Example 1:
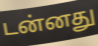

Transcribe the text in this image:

டன்னது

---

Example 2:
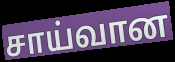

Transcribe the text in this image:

சாய்வான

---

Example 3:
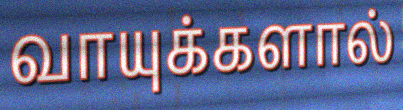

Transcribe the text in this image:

வாயுக்களால்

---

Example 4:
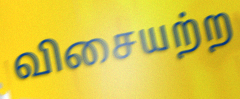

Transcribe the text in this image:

விசையற்ற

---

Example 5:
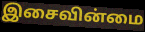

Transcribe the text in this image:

இசைவின்மை